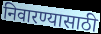
निवारण्यासाठी